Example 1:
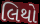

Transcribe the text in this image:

લિથો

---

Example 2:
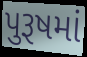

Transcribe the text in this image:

પુરૂષમાં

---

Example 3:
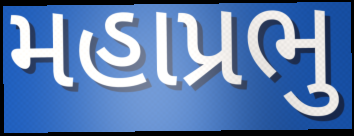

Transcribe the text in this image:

મહાપ્રભુ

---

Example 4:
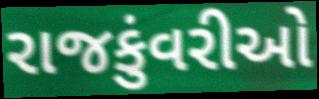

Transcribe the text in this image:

રાજકુંવરીઓ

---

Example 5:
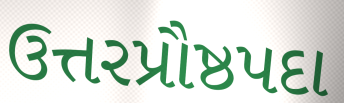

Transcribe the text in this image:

ઉત્તરપ્રૌષ્ઠપદા